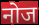
नोज